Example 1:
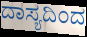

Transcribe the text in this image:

ದಾಸ್ಯದಿಂದ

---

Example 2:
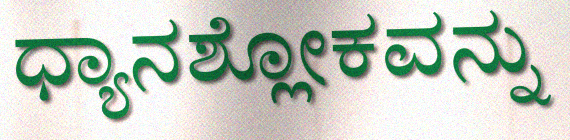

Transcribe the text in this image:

ಧ್ಯಾನಶ್ಲೋಕವನ್ನು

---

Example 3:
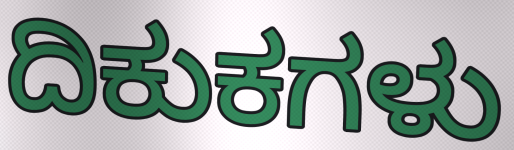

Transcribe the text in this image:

ದಿಕುಕಗಳು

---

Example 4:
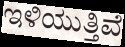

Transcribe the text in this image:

ಇಳಿಯುತ್ತಿವೆ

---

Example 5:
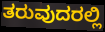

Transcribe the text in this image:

ತರುವುದರಲ್ಲಿ